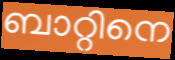
ബാറ്റിനെ